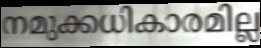
നമുക്കധികാരമില്ല